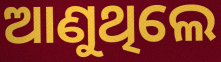
ଆଣୁଥିଲେ